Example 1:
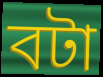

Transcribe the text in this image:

বটা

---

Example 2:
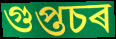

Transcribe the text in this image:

গুপ্তচৰ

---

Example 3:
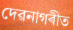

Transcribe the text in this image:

দেৱনাগৰীত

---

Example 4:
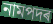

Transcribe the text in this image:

নামপদৰ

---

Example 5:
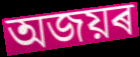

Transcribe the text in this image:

অজয়ৰ